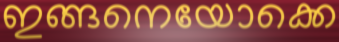
ഇങ്ങനെയോക്കെ